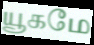
யூகமே